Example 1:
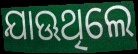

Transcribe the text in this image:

ଯାଊଥିଲେ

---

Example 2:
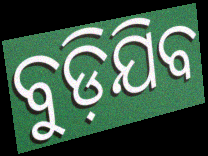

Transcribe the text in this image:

ବୁଡ଼ିଯିବ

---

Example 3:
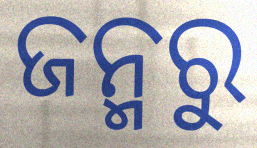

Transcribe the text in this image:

ଜନ୍ମରୁ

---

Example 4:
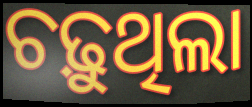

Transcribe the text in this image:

ଚଢ଼ୁଥିଲା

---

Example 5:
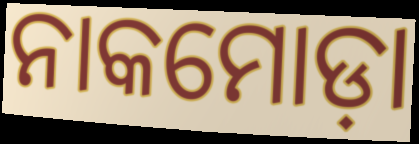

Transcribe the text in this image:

ନାକମୋଡ଼ା